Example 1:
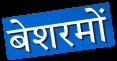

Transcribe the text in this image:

बेशरमों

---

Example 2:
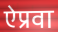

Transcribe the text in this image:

ऐप्रवा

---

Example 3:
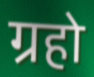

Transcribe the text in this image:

ग्रहो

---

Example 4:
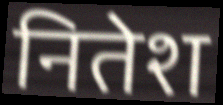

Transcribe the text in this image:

नितेश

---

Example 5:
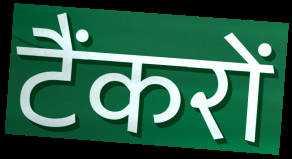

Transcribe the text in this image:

टैंकरों